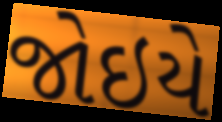
જોઇયે